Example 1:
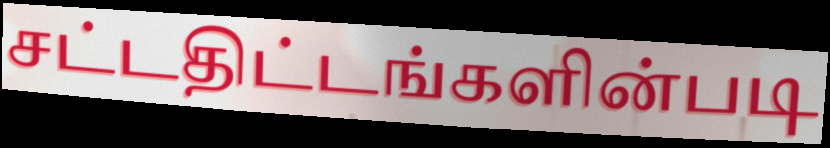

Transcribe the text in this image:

சட்டதிட்டங்களின்படி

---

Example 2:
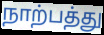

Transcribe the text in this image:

நாற்பத்து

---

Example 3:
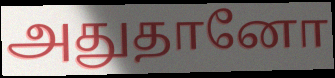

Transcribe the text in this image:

அதுதானோ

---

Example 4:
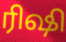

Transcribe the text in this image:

ரிஷி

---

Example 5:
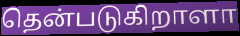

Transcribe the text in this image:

தென்படுகிறாளா